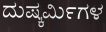
ದುಷ್ಕರ್ಮಿಗಳ